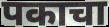
पकाचा